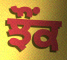
ਝੌਂਕ